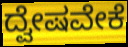
ದ್ವೇಷವೇಕೆ